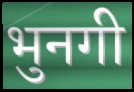
भुनगी